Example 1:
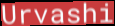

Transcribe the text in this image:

Urvashi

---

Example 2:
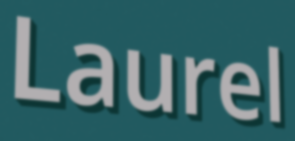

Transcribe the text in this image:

Laurel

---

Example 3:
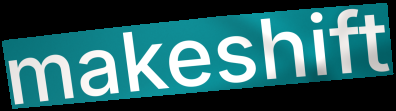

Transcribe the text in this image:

makeshift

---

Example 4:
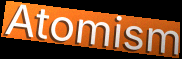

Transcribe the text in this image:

Atomism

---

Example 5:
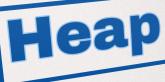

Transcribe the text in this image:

Heap